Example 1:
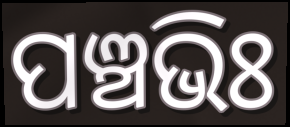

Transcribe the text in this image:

ପଞ୍ଚଭିଃ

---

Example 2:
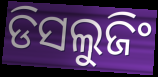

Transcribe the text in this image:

ଡିସଲୁଜିଂ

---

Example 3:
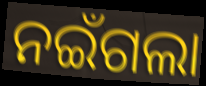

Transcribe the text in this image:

ନଇଁଗଲା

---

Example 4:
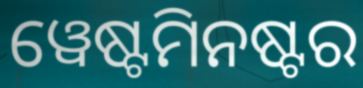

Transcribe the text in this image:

ୱେଷ୍ଟମିନଷ୍ଟର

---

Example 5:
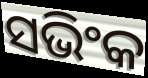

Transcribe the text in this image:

ସଭିଂକ